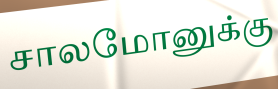
சாலமோனுக்கு